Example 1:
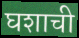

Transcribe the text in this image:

घशाची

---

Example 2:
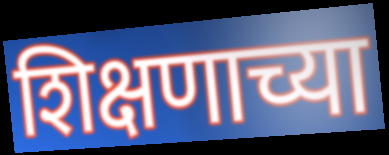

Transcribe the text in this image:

शिक्षणाच्या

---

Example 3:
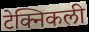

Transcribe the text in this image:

टेक्निकली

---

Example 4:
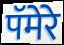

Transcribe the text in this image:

पॅमेरे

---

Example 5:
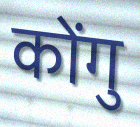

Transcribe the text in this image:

कोंगु